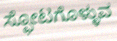
ಸ್ಫೋಟಗೊಳ್ಳುವ